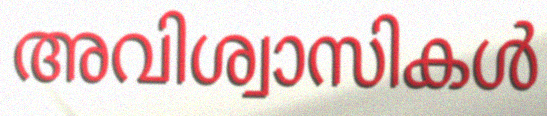
അവിശ്വാസികൾ